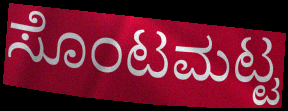
ಸೊಂಟಮಟ್ಟ